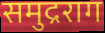
समुद्रराग